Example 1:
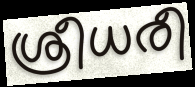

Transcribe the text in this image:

ശ്രീധരീ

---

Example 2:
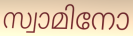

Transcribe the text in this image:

സ്വാമിനോ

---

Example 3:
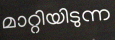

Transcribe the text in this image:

മാറ്റിയിടുന്ന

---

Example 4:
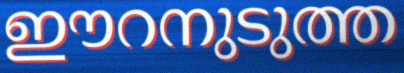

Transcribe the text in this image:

ഈറനുടുത്ത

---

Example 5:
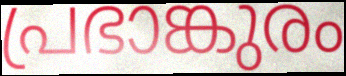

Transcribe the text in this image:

പ്രഭാങ്കുരം